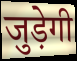
जुड़ेगी